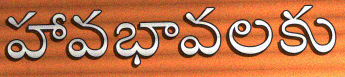
హావభావలకు